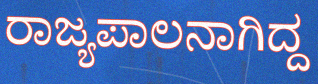
ರಾಜ್ಯಪಾಲನಾಗಿದ್ದ